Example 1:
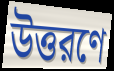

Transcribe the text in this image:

উত্তরণে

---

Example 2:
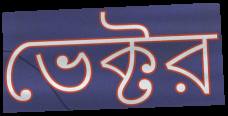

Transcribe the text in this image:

ভেক্টর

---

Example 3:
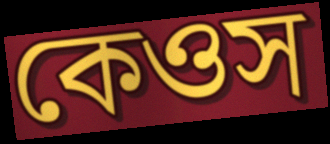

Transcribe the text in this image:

কেওস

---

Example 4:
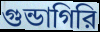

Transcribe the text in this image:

গুন্ডাগিরি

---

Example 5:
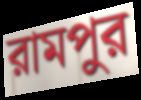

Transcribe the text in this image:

রামপুর